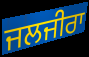
ਜਲਜੀਰਾ